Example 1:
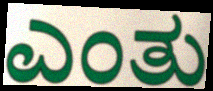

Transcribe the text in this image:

ಎಂತು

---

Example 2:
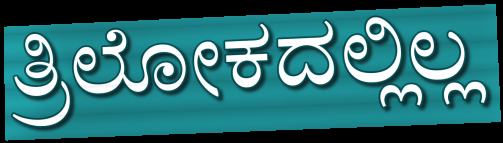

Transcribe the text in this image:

ತ್ರಿಲೋಕದಲ್ಲಿಲ್ಲ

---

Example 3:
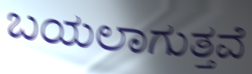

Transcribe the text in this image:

ಬಯಲಾಗುತ್ತವೆ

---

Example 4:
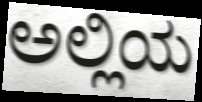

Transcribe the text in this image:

ಅಲ್ಲಿಯ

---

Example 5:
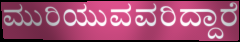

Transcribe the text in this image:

ಮುರಿಯುವವರಿದ್ದಾರೆ